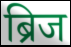
ब्रिज